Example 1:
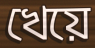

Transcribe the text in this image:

খেয়ে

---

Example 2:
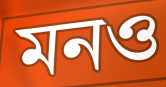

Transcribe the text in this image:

মনও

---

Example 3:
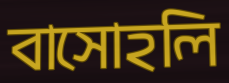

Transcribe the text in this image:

বাসোহলি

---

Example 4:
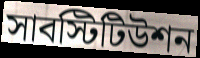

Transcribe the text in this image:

সাবস্টিটিউশন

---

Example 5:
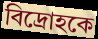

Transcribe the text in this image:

বিদ্রোহকে